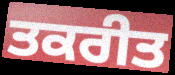
ਤਕਰੀਤ